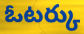
ఓటర్కు